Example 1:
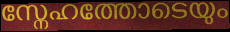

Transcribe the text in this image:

സ്നേഹത്തോടെയും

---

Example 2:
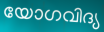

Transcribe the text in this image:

യോഗവിദ്യ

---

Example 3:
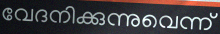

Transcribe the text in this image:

വേദനിക്കുന്നുവെന്ന്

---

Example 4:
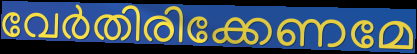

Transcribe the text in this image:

വേർതിരിക്കേണമേ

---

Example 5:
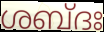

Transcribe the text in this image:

ശബ്ദഃ